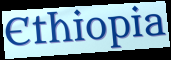
Ethiopia